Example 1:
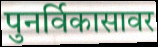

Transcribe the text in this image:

पुनर्विकासावर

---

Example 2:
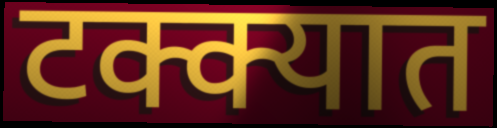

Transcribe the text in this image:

टक्क्यात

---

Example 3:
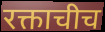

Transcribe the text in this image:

रक्ताचीच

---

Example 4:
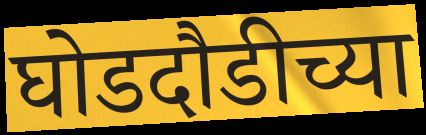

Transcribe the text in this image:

घोडदौडीच्या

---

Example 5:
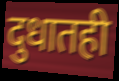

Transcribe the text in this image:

दुधातही